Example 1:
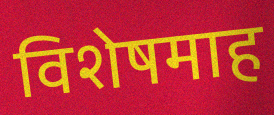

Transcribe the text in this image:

विशेषमाह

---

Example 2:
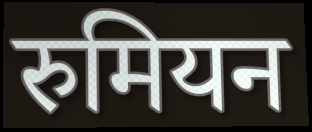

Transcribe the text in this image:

रुमियन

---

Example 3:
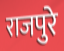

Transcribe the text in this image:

राजपुरे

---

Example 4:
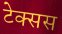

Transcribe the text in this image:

टेक्सस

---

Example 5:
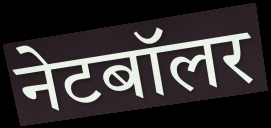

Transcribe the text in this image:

नेटबॉलर